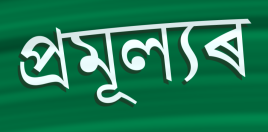
প্ৰমূল্যৰ